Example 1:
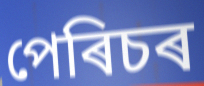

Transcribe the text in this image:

পেৰিচৰ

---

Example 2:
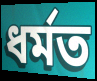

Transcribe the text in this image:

ধৰ্মত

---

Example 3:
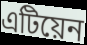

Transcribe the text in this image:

এটিয়েন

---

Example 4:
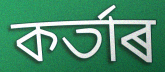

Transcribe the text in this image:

কৰ্তাৰ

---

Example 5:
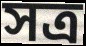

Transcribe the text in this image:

সত্ৰ